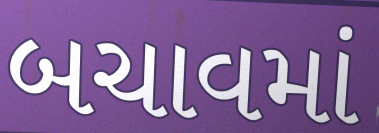
બચાવમાં